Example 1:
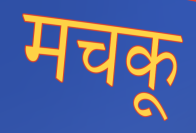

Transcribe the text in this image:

मचकू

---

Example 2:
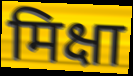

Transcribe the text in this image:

मिक्षा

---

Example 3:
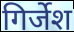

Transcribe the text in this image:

गिर्जेश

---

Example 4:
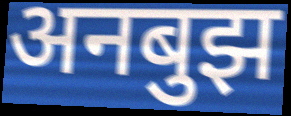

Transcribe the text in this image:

अनबुझ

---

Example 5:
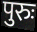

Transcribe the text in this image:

पुरुः